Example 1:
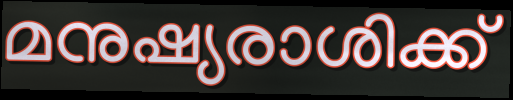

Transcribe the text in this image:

മനുഷ്യരാശിക്ക്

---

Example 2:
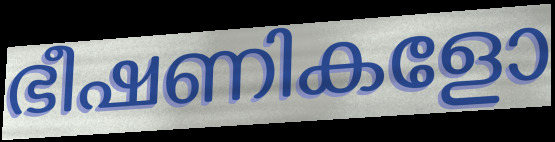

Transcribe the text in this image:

ഭീഷണികളോ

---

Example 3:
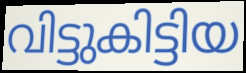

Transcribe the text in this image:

വിട്ടുകിട്ടിയ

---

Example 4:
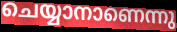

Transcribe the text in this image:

ചെയ്യാനാണെന്നു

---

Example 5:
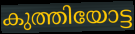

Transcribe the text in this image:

കുത്തിയോട്ട